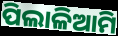
ପିଲାଳିଆମି